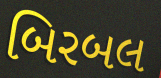
બિરબલ